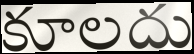
కూలదు